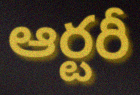
ఆర్టరీ